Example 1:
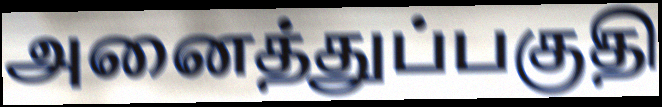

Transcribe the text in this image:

அனைத்துப்பகுதி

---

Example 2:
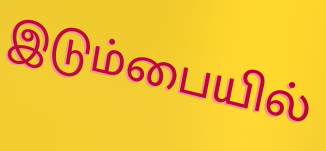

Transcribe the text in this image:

இடும்பையில்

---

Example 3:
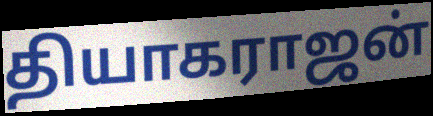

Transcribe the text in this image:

தியாகராஜன்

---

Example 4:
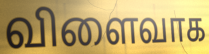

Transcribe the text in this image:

விளைவாக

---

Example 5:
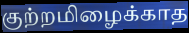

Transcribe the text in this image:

குற்றமிழைக்காத